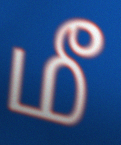
மீ